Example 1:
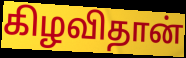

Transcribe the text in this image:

கிழவிதான்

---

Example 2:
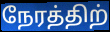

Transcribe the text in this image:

நேரத்திற்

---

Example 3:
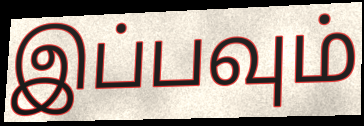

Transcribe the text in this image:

இப்பவும்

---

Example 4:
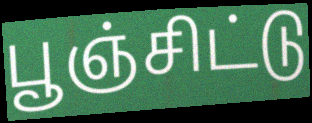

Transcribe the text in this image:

பூஞ்சிட்டு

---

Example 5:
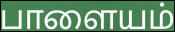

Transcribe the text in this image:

பாளையம்